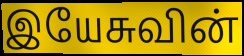
இயேசுவின்